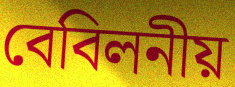
বেবিলনীয়